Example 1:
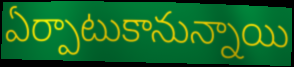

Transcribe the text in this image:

ఏర్పాటుకానున్నాయి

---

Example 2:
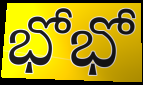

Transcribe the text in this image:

భోభో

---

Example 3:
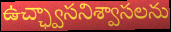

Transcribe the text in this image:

ఉచ్ఛ్వాసనిశ్వాసలను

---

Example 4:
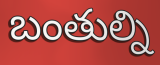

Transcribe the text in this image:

బంతుల్ని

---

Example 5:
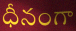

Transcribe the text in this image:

ధీనంగా